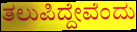
ತಲುಪಿದ್ದೇವೆಂದು